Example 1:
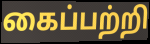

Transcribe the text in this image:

கைப்பற்றி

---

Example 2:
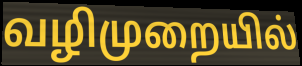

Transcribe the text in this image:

வழிமுறையில்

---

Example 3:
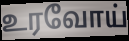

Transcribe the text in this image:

உரவோய்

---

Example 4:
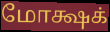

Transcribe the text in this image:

மோக்ஷக்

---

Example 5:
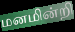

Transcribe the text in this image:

மனமின்றி